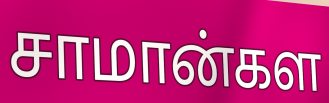
சாமான்கள